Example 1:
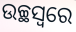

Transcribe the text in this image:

ଉଚ୍ଛସ୍ୱରେ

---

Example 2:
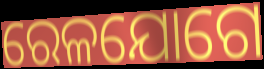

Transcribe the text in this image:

ରେଳଯୋଗେ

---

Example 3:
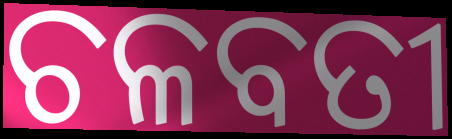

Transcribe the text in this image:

ଚଳବତୀ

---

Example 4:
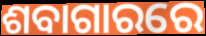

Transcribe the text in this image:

ଶବାଗାରରେ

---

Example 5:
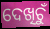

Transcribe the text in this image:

ଦେଖିଚୁଁ